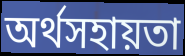
অর্থসহায়তা